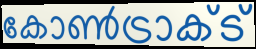
കോൺട്രാക്ട്